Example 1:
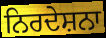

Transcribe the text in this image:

ਨਿਰਦੇਸ਼ਨਾ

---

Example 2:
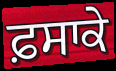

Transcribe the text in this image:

ਫ਼ਸਾਕੇ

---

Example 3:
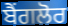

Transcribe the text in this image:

ਬੈਂਗਲੋਰ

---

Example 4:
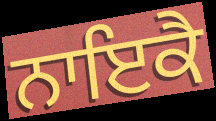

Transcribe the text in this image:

ਨਾਇਕੈ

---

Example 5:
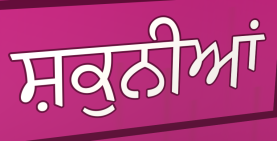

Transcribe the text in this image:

ਸ਼ਕੁਨੀਆਂ